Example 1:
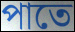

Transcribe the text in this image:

পাতে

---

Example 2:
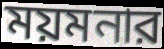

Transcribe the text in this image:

ময়মনার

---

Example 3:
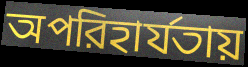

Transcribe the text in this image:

অপরিহার্যতায়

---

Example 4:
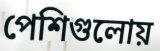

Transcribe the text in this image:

পেশিগুলোয়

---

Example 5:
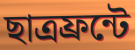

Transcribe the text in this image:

ছাত্রফ্রন্টে